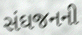
સંઘજનની